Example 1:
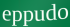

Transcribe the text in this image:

eppudo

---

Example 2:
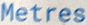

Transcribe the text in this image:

Metres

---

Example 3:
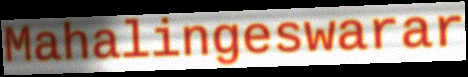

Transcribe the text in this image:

Mahalingeswarar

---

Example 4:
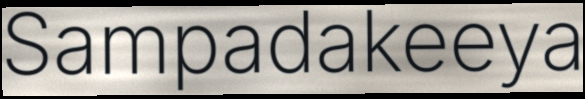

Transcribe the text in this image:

Sampadakeeya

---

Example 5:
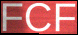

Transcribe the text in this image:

FCF